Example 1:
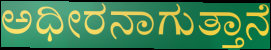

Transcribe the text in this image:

ಅಧೀರನಾಗುತ್ತಾನೆ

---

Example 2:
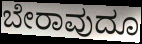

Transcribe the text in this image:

ಬೇರಾವುದೂ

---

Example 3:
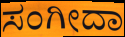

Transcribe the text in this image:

ಸಂಗೀದಾ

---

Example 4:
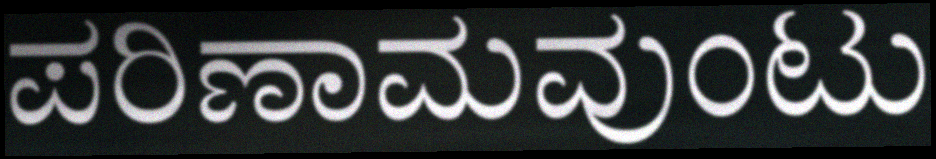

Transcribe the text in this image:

ಪರಿಣಾಮವುಂಟು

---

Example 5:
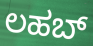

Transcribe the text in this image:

ಲಹಬ್